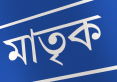
মাতৃক